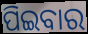
ପିଇବାର